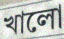
খালো